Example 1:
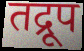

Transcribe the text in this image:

तद्रूप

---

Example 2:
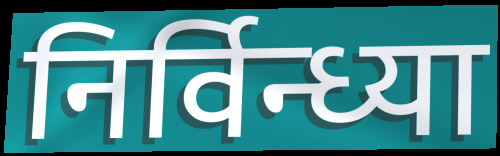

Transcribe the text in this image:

निर्विन्ध्या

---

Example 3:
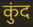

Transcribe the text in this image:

कुंद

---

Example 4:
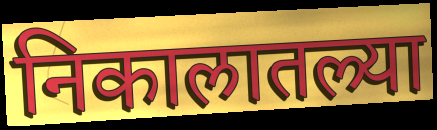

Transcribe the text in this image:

निकालातल्या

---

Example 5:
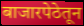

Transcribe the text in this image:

बाजारपेठेतून